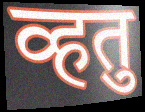
व्हतु